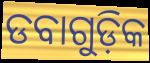
ଡବାଗୁଡ଼ିକ